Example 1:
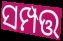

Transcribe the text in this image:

ସମ୍ପତ୍ତ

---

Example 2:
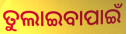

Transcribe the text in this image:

ତୁଲାଇବାପାଇଁ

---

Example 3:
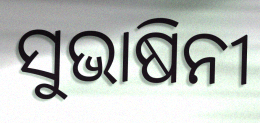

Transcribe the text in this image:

ସୁଭାଷିନୀ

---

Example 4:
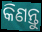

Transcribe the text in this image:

କିଣନ୍ତୁ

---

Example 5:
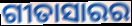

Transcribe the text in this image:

ଗୀତାସାରର